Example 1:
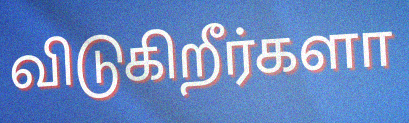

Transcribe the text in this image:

விடுகிறீர்களா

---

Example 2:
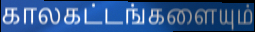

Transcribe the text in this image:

காலகட்டங்களையும்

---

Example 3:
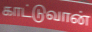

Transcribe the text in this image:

காட்டுவான்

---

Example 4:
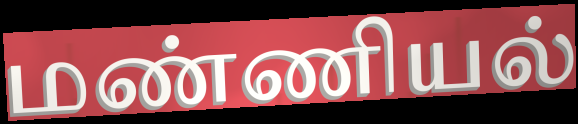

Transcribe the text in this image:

மண்ணியல்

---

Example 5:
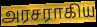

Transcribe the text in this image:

அரசராகிய